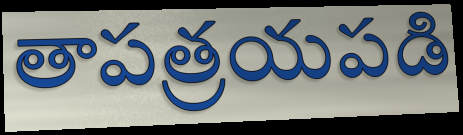
తాపత్రయపడి